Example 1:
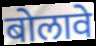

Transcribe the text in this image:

बोलावे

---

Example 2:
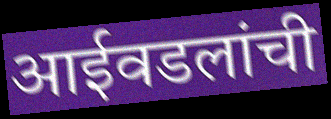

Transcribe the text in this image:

आईवडलांची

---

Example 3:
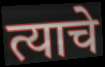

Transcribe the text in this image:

त्याचे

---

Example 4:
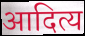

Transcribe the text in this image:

आदित्य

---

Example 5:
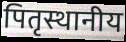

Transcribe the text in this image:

पितृस्थानीय